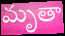
మృతా